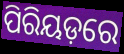
ପିରିୟଡ଼ରେ